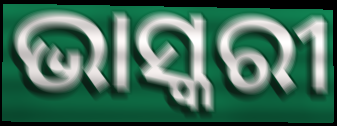
ଭାସ୍କରୀ